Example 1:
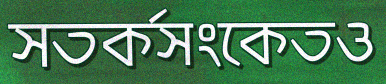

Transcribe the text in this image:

সতর্কসংকেতও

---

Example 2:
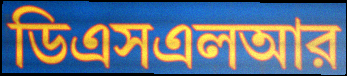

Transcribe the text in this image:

ডিএসএলআর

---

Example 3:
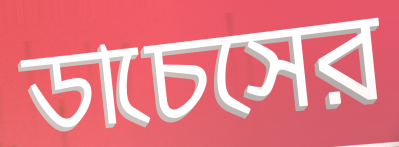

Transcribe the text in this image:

ডাচেসের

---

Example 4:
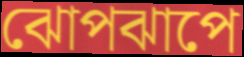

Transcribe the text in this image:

ঝোপঝাপে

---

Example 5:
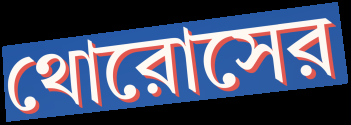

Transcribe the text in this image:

থোরোসের